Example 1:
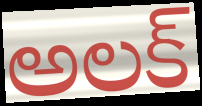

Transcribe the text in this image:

అలక్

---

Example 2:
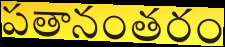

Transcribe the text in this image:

పతానంతరం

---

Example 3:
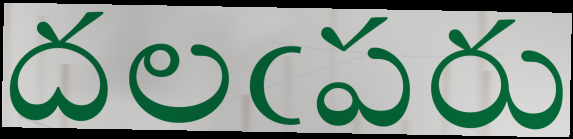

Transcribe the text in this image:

దలఁపరు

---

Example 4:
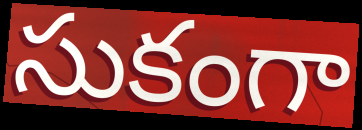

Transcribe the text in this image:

సుకంగా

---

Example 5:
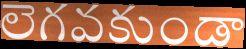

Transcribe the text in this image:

లెగవకుండా